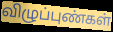
விழுப்புண்கள்